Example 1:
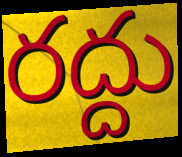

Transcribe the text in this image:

రద్దు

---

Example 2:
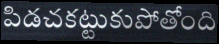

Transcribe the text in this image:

పిడచకట్టుకుపోతోంది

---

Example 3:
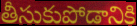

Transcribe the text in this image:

తీసుకుపోడానికి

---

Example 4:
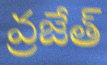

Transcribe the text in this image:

వ్రజేత్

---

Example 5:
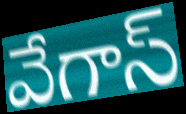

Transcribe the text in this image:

వేగాస్